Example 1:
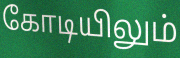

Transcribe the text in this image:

கோடியிலும்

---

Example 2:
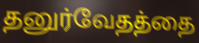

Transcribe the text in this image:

தனுர்வேதத்தை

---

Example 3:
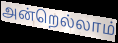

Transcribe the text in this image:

அன்றெல்லாம்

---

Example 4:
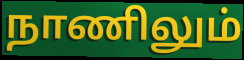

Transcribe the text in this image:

நாணிலும்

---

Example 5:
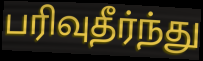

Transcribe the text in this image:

பரிவுதீர்ந்து